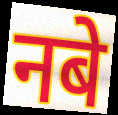
नबे